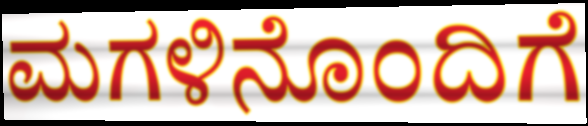
ಮಗಳಿನೊಂದಿಗೆ